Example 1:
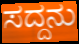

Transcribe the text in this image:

ಸದ್ದನು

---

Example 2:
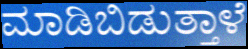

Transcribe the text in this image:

ಮಾಡಿಬಿಡುತ್ತಾಳೆ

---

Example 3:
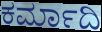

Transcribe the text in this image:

ಕರ್ಮಾದಿ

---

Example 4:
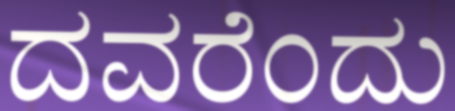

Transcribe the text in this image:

ದವರೆಂದು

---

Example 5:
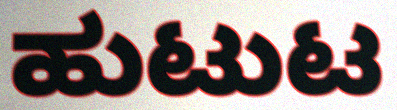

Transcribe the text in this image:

ಹುಟುಟ